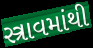
સ્ત્રાવમાંથી